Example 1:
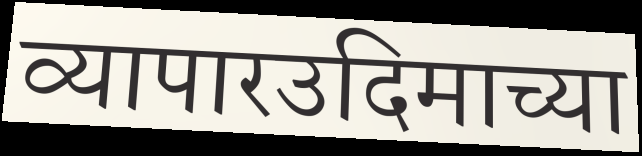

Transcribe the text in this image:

व्यापारउदिमाच्या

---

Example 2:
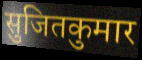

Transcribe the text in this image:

सुजितकुमार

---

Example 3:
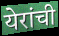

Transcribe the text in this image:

येरांची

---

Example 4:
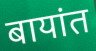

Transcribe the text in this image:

बायांत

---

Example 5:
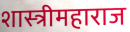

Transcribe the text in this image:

शास्त्रीमहाराज